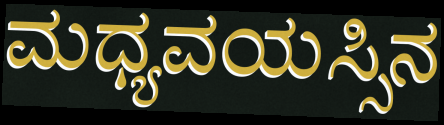
ಮಧ್ಯವಯಸ್ಸಿನ